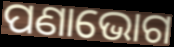
ପଣାଭୋଗ